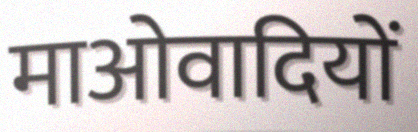
माओवादियों